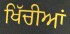
ਖਿੱਚੀਆਂ